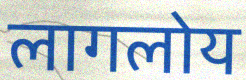
लागलोय